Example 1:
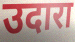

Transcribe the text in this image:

उदारा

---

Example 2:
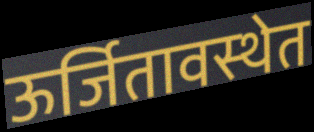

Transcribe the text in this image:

ऊर्जितावस्थेत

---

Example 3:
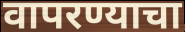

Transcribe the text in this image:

वापरण्याचा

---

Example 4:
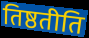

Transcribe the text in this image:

तिष्ठतीति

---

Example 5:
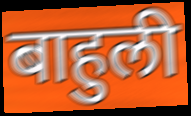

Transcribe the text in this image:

बाहुली